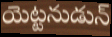
యెట్టనుడున్